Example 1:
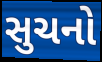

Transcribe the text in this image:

સુચનો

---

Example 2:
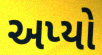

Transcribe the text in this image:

અપ્યો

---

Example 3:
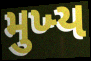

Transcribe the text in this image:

મુખ્‍ય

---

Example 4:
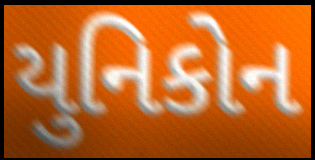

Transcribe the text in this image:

યુનિકોન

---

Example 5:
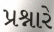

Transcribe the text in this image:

પ્રશ્નારે